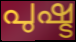
പുഷ്ട